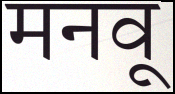
मनवू